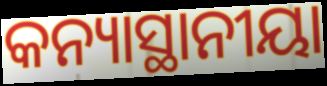
କନ୍ୟାସ୍ଥାନୀୟା